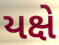
યક્ષે